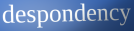
despondency